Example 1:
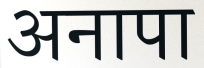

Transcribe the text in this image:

अनापा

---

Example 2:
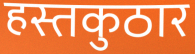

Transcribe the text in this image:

हस्तकुठार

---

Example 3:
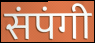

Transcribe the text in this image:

संपंगी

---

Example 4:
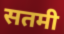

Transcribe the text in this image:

सतमी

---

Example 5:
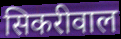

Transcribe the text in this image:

सिकरीवाल